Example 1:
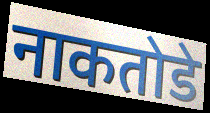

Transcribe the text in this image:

नाकतोडे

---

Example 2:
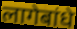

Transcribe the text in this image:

लागेबांधे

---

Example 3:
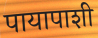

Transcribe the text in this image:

पायापाशी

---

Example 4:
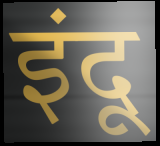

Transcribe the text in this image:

इंदू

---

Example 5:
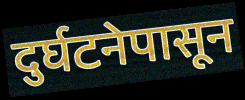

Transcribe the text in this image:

दुर्घटनेपासून